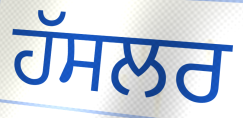
ਹੱਸਲਰ